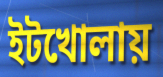
ইটখোলায়